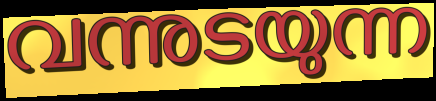
വന്നുടയുന്ന